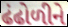
ઢંઢોળીને